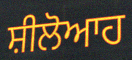
ਸ਼ੀਲੋਆਹ